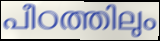
പീഠത്തിലും